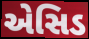
એસિડ